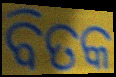
ବିତକ